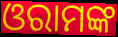
ଓରାମଙ୍କ